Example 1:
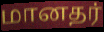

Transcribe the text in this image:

மானதர்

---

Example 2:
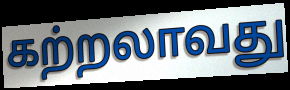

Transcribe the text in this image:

கற்றலாவது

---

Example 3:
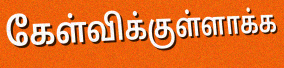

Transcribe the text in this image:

கேள்விக்குள்ளாக்க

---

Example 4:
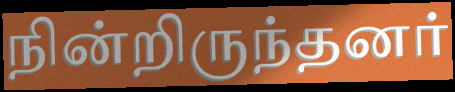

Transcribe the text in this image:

நின்றிருந்தனர்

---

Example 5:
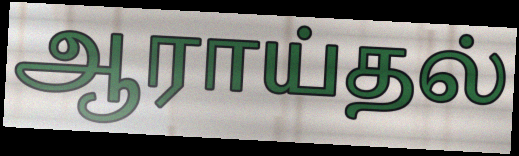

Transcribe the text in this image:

ஆராய்தல்